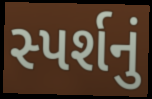
સ્પર્શનું